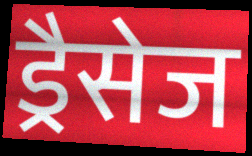
ड्रैसेज